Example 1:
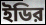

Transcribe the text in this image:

ইডির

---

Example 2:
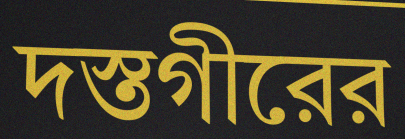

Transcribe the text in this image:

দস্তগীরের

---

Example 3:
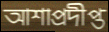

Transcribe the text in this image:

আশাপ্রদীপ্ত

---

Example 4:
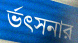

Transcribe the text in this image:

র্ভৎসনার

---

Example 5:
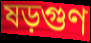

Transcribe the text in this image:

ষড়গুণ